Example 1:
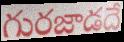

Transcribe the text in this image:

గురజాడదే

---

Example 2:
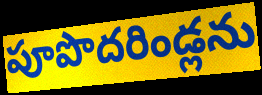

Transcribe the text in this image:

పూపొదరిండ్లను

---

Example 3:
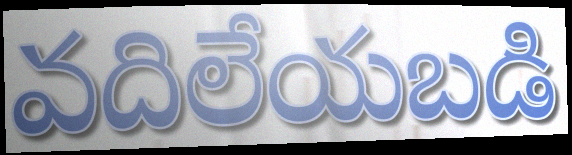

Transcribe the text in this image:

వదిలేయబడి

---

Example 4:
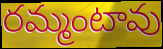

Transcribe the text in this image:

రమ్మంటావు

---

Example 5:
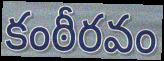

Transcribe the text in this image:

కంఠీరవం